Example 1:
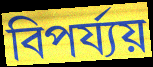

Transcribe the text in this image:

বিপৰ্য্যয়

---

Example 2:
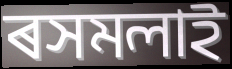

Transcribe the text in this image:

ৰসমলাই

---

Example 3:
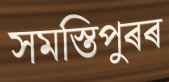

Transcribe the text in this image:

সমস্তিপুৰৰ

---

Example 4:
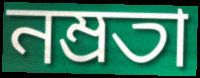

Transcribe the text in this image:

নম্ৰতা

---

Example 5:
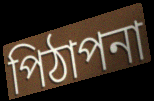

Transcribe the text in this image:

পিঠাপনা